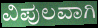
ವಿಪುಲವಾಗಿ